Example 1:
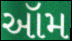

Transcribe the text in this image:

ઑમ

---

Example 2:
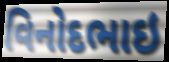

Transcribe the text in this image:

વિનોદભાઇ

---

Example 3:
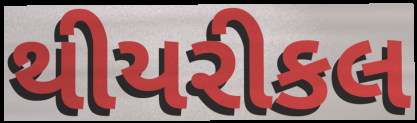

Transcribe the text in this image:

થીયરીકલ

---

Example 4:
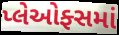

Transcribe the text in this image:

પ્લેઓફ્સમાં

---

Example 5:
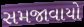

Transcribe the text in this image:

સમજાવાયો